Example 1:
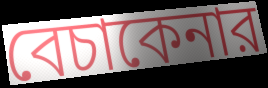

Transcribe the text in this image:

বেচাকেনার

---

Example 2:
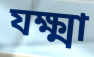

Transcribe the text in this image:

যক্ষ্মা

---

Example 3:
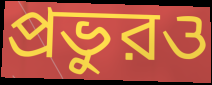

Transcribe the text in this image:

প্রভুরও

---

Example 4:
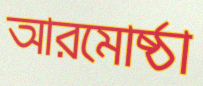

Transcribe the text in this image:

আরমোষ্ঠা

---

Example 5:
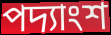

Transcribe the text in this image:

পদ্যাংশ